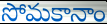
సోమకానాం